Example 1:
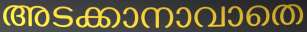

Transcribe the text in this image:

അടക്കാനാവാതെ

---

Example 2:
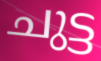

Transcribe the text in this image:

ചുട്ട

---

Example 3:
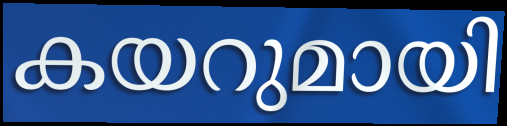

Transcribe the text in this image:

കയറുമായി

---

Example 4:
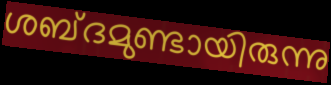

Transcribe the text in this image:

ശബ്ദമുണ്ടായിരുന്നു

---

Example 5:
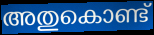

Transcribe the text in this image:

അതുകൊണ്ട്